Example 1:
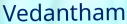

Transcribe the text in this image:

Vedantham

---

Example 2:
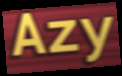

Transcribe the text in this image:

Azy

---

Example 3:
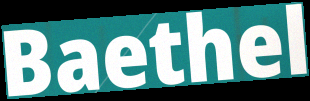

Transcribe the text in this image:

Baethel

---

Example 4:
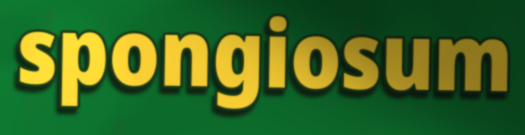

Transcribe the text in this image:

spongiosum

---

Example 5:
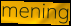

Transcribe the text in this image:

mening